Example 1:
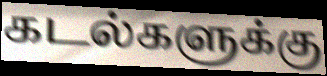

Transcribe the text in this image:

கடல்களுக்கு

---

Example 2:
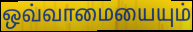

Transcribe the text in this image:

ஒவ்வாமையையும்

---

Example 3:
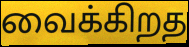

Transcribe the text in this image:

வைக்கிறத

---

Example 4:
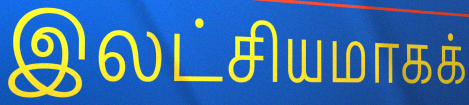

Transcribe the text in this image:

இலட்சியமாகக்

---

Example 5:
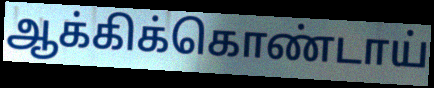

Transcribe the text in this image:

ஆக்கிக்கொண்டாய்